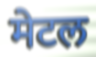
मेटल